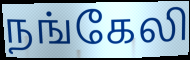
நங்கேலி